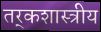
तर्कशास्त्रीय